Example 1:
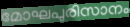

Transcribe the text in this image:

മോഘപുരിസാനം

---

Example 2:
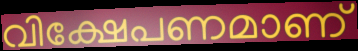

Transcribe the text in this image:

വിക്ഷേപണമാണ്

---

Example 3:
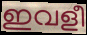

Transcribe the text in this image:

ഇവളീ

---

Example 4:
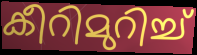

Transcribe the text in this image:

കീറിമുറിച്ച്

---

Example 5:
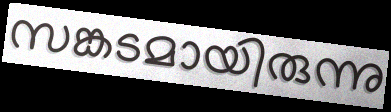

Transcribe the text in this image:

സങ്കടമായിരുന്നു